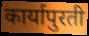
कार्यापुरती